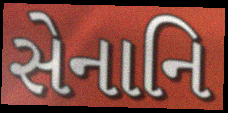
સેનાનિ